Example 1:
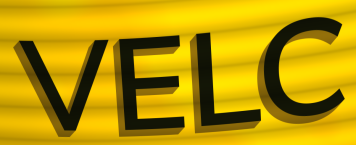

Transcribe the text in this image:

VELC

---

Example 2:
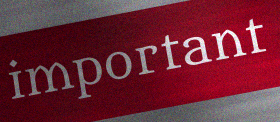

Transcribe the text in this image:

important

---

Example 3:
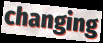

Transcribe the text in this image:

changing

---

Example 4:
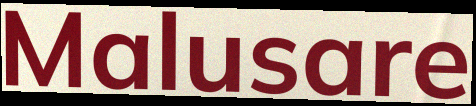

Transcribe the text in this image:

Malusare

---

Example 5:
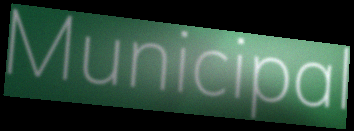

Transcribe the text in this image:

Municipal